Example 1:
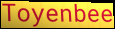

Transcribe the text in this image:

Toyenbee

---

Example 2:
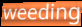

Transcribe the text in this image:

weeding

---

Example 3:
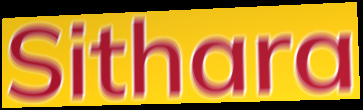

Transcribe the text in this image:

Sithara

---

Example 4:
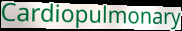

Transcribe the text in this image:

Cardiopulmonary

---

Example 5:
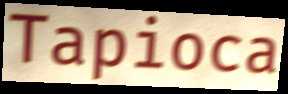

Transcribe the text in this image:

Tapioca